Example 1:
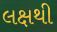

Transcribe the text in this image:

લક્ષથી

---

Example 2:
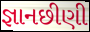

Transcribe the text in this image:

જ્ઞાનછીણી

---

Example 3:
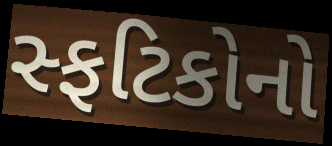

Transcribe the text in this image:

સ્ફટિકોનો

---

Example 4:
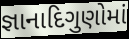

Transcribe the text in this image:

જ્ઞાનાદિગુણોમાં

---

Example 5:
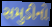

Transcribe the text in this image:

સમુડીનો